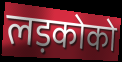
लड़कोको